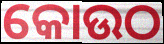
କୋଉଠ